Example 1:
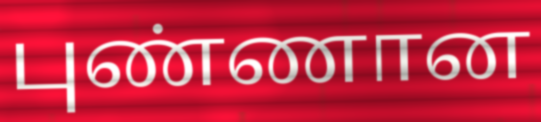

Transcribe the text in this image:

புண்ணான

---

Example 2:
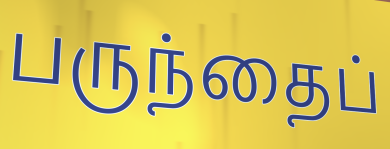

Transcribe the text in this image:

பருந்தைப்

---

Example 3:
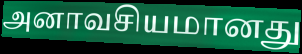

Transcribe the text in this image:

அனாவசியமானது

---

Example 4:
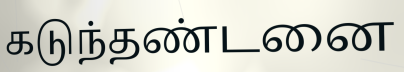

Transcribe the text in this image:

கடுந்தண்டனை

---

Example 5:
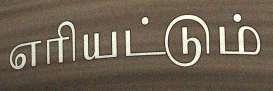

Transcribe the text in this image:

எரியட்டும்